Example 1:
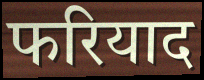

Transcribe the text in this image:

फरियाद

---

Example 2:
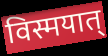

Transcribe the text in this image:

विस्मयात्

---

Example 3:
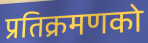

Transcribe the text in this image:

प्रतिक्रमणको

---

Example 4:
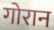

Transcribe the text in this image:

गोरान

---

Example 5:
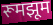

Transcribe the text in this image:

रूमझूम